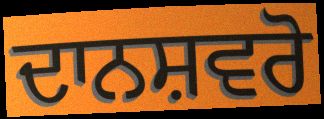
ਦਾਨਸ਼ਵਰੋ